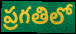
ప్రగతిలో